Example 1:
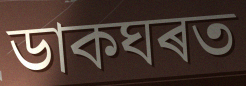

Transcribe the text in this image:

ডাকঘৰত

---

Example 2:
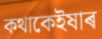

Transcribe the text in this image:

কথাকেইষাৰ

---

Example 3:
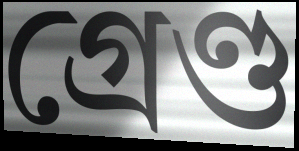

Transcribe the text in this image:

গ্ৰেণ্ড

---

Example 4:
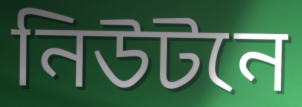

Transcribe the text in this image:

নিউটনে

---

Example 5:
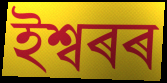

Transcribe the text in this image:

ইশ্বৰৰ